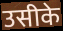
उसीके